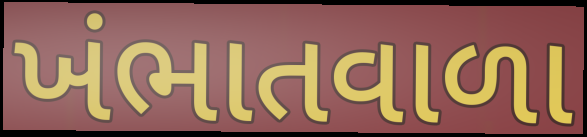
ખંભાતવાળા